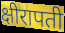
क्षीरापती